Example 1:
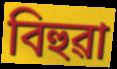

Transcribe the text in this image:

বিহুৱা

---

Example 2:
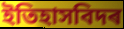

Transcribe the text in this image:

ইতিহাসবিদৰ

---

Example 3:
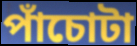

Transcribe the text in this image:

পাঁচোটা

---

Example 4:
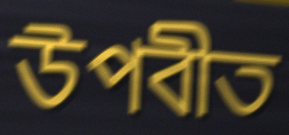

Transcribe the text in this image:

উপবীত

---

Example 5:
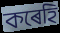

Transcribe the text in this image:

কৰেহি